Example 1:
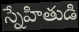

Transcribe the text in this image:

స్నేహితుడి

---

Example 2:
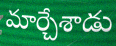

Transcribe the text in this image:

మార్చేశాడు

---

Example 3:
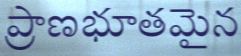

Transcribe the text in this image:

ప్రాణభూతమైన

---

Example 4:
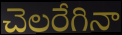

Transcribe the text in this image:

చెలరేగినా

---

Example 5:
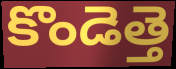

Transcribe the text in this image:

కొండెత్తె